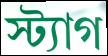
স্ট্যাগ